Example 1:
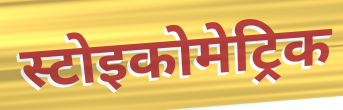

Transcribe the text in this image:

स्टोइकोमेट्रिक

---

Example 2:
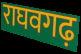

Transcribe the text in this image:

राघवगढ़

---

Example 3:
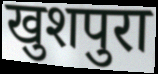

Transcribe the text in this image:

खुशपुरा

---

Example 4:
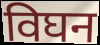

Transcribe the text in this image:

विघन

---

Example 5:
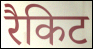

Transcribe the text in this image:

रैकिट